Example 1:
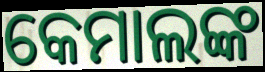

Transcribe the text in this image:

କେମାଲଙ୍କ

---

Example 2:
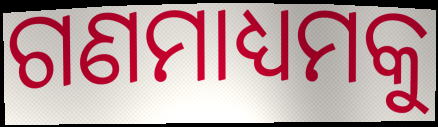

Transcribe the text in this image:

ଗଣମାଧ୍ୟମକୁ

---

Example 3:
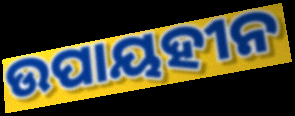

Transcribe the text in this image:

ଉପାୟହୀନ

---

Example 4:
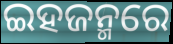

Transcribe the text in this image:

ଇହଜନ୍ମରେ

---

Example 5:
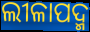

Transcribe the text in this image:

ଲୀଳାପଦ୍ମ